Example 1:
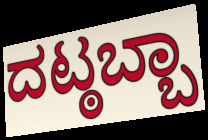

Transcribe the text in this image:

ದಟ್ಠಬ್ಬಾ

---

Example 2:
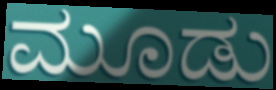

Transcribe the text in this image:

ಮೂಡು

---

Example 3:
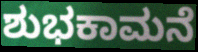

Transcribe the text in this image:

ಶುಭಕಾಮನೆ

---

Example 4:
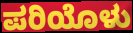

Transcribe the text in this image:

ಪರಿಯೊಳು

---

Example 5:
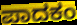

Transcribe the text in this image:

ಪಾದಕಂ